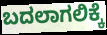
ಬದಲಾಗಲಿಕ್ಕೆ